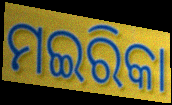
ମଇରିକା